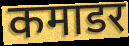
कमाडर